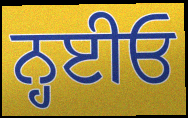
ਨ੍ਹਈਓ